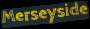
Merseyside